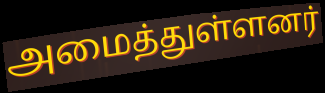
அமைத்துள்ளனர்